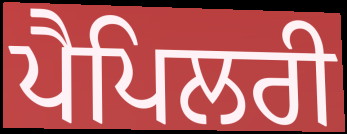
ਪੈਪਿਲਰੀ